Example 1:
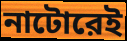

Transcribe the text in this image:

নাটোরেই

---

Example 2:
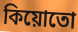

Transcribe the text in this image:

কিয়োতো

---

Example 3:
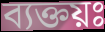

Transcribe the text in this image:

ব্যক্তয়ঃ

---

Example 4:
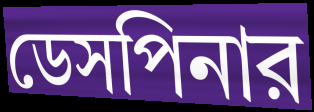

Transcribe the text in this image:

ডেসপিনার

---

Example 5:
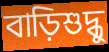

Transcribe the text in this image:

বাড়িশুদ্ধু